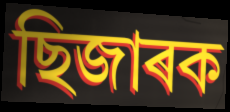
ছিজাৰক